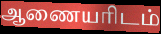
ஆணையரிடம்